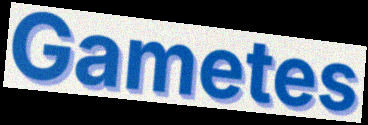
Gametes